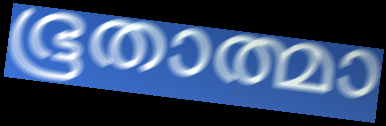
ഭൂതാത്മാ